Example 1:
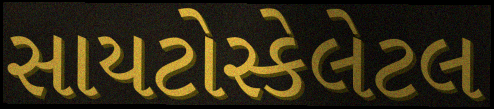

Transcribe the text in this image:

સાયટોસ્કેલેટલ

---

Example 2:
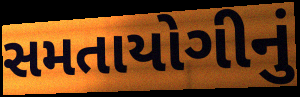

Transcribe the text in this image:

સમતાયોગીનું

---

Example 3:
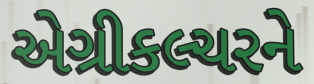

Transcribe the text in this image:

એગ્રીકલ્ચરને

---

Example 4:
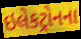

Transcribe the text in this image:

ઇલેકટ્રોનના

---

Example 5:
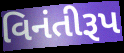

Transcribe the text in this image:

વિનંતીરૂપ